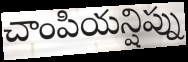
చాంపియన్షిప్ను